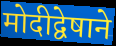
मोदीद्वेषाने